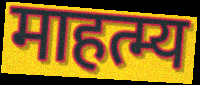
माहत्म्य